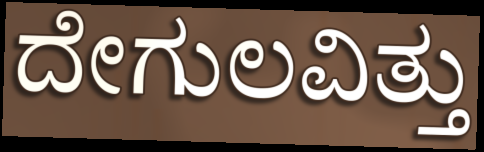
ದೇಗುಲವಿತ್ತು